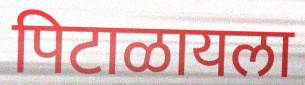
पिटाळायला